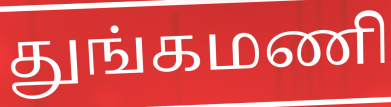
துங்கமணி